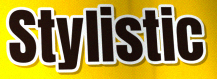
Stylistic